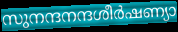
സുനന്ദനന്ദശീർഷണ്യാ